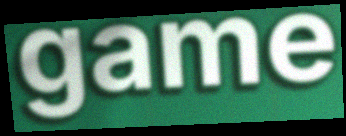
game